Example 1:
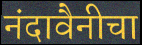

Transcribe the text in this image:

नंदावैनीचा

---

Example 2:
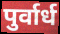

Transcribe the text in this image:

पुर्वार्ध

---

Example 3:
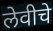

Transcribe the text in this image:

लेवीचे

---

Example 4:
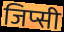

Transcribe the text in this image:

जिप्सी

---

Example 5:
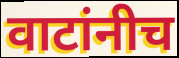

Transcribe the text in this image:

वाटांनीच